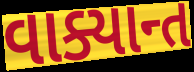
વાક્યાન્ત